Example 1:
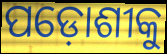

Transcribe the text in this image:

ପଡ଼ୋଶୀକୁ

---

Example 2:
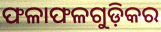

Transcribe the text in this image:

ଫଳାଫଳଗୁଡ଼ିକର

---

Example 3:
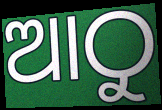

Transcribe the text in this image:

ଆଠୁ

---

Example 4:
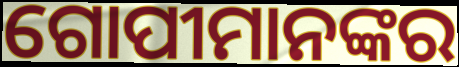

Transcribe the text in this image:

ଗୋପୀମାନଙ୍କର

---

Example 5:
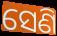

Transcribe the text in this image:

ସେଣି